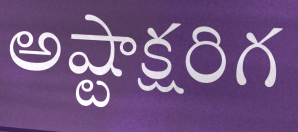
అష్టాక్షరిగ